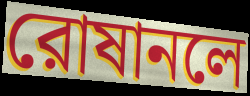
রোষানলে